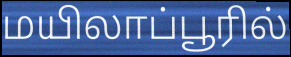
மயிலாப்பூரில்